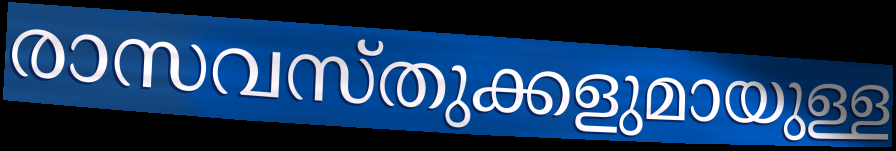
രാസവസ്തുക്കളുമായുള്ള